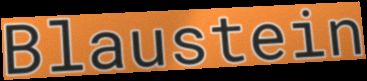
Blaustein